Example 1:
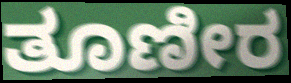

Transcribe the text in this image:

ತೂಣೀರ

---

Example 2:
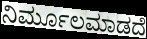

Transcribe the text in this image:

ನಿರ್ಮೂಲಮಾಡದೆ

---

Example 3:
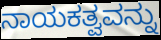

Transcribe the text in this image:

ನಾಯಕತ್ವವನ್ನು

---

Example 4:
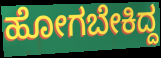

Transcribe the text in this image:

ಹೋಗಬೇಕಿದ್ದ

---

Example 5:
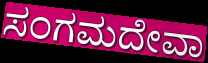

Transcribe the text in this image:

ಸಂಗಮದೇವಾ